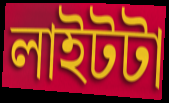
লাইটটা